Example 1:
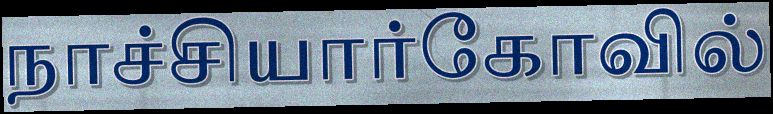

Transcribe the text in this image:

நாச்சியார்கோவில்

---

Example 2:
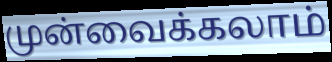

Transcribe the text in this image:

முன்வைக்கலாம்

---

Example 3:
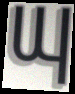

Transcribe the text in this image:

யு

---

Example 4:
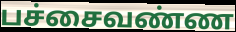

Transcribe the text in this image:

பச்சைவண்ண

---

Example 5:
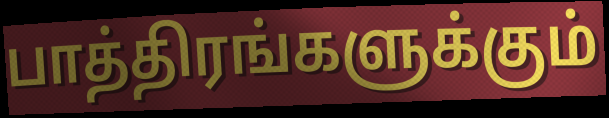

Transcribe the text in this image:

பாத்திரங்களுக்கும்